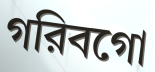
গরিবগো